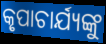
କୃପାଚାର୍ଯ୍ୟଙ୍କୁ